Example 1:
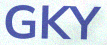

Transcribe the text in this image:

GKY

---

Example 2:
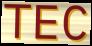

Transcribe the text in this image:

TEC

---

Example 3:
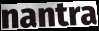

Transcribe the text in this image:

nantra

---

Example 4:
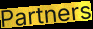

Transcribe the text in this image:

Partners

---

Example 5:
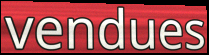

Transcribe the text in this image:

vendues